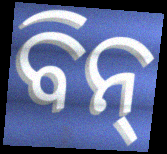
ବିନ୍